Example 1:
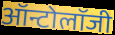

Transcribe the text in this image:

ऑन्टोलॉजी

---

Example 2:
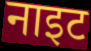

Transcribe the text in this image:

नाइट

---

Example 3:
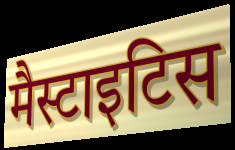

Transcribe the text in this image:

मैस्टाइटिस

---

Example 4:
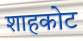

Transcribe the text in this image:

शाहकोट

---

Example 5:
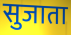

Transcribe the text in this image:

सुजाता